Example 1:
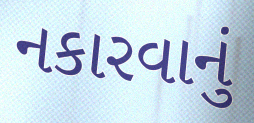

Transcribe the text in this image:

નકારવાનું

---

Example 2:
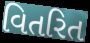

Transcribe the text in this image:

વિતરિત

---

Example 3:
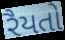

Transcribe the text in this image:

રૈયતો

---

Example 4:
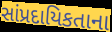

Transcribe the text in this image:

સાંપ્રદાયિકતાના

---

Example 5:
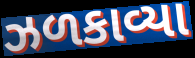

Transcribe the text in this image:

ઝળકાવ્યા